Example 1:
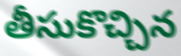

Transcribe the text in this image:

తీసుకొచ్చిన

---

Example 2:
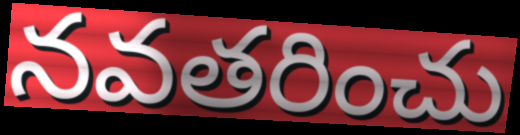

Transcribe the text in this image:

నవతరించు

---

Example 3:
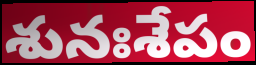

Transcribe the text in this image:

శునఃశేపం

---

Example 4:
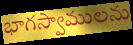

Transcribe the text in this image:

భాగస్వాములను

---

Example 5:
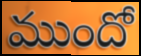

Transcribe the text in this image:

ముందో